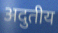
अदुतीय